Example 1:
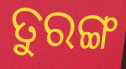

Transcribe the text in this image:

ତୁରଙ୍ଗ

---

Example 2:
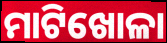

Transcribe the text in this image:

ମାଟିଖୋଳା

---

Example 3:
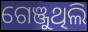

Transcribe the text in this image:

ଗେଞ୍ଜୁଥିଲି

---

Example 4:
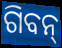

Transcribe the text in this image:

ଗିବନ୍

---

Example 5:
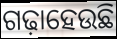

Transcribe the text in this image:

ଗଢ଼ାହେଉଛି